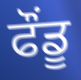
ਫੌਂਡੂ